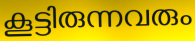
കൂട്ടിരുന്നവരും